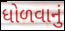
ધોળવાનું